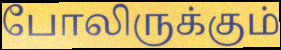
போலிருக்கும்